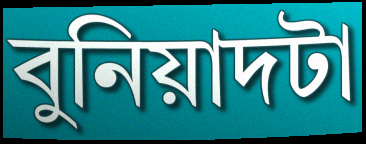
বুনিয়াদটা